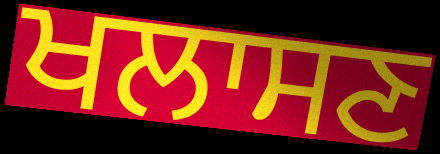
ਖਲਾਸਣ